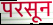
परसून